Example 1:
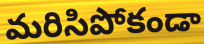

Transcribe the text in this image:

మరిసిపోకండా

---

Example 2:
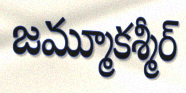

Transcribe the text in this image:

జమ్మూకశ్మీర్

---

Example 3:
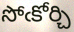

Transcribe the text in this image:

సోఁకోర్చి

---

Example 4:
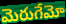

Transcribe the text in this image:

మెరుగేమో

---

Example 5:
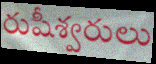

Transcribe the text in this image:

రుషీశ్వరులు